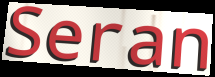
Seran